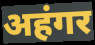
अहंगर